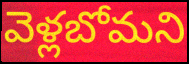
వెళ్లబోమని